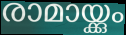
രാമായ്ക്കും